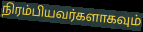
நிரம்பியவர்களாகவும்